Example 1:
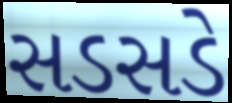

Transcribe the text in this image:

સડસડે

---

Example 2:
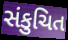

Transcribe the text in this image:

સંકુચિત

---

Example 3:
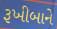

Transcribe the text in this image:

રૂખીબાને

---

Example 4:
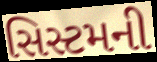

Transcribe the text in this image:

સિસ્ટમની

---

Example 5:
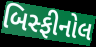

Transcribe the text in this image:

બિસ્ફીનોલ